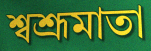
শ্বশ্রূমাতা